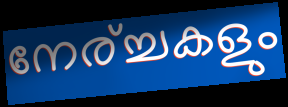
നേര്ച്ചകളും